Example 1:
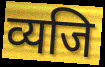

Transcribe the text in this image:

व्यजि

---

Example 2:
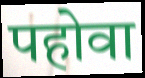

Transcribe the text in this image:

पहोवा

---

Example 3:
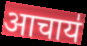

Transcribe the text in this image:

आचाय॑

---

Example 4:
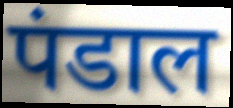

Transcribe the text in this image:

पंडाल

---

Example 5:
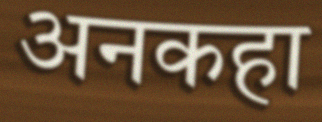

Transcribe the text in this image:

अनकहा